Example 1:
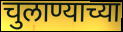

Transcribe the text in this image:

चुलाण्याच्या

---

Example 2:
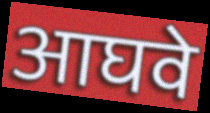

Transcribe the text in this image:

आघवे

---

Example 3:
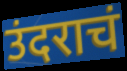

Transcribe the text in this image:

उंदराचं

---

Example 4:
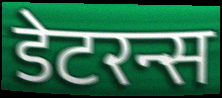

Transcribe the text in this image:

डेटरन्स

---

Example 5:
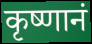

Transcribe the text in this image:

कृष्णानं